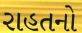
રાહતનો